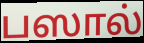
பஸால்